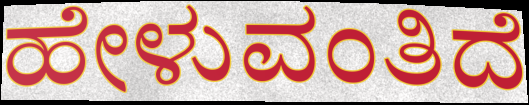
ಹೇಳುವಂತಿದೆ